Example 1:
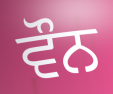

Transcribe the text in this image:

ਵੌਨ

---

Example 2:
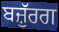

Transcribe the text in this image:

ਬਜ਼ੁੱਰਗ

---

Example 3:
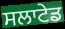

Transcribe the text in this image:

ਸਲਾਟੇਡ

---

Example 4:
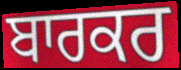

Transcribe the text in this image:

ਬਾਰਕਰ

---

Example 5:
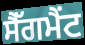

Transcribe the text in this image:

ਸੈੱਗਮੈਂਟ